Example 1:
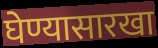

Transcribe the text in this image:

घेण्यासारखा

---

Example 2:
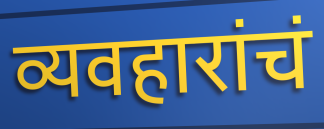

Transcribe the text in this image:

व्यवहारांचं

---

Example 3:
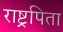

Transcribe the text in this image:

राष्ट्रपिता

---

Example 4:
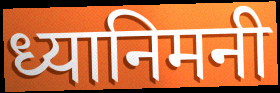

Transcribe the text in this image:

ध्यानिमनी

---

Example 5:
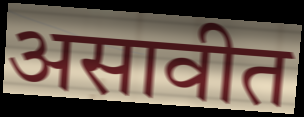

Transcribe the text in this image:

असावीत